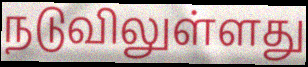
நடுவிலுள்ளது